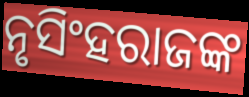
ନୃସିଂହରାଜଙ୍କ